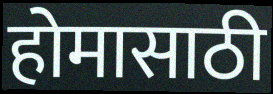
होमासाठी